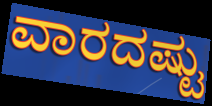
ವಾರದಷ್ಟು